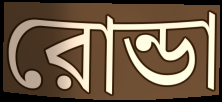
রোন্ডা